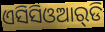
ଏସିସିଓଆର୍‌ଡି